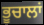
ਭੂਚਾਲਾਂ